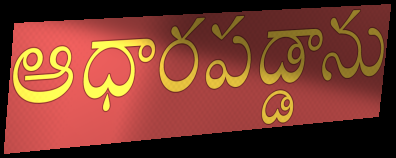
ఆధారపడ్డాను